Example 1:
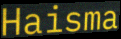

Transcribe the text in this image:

Haisma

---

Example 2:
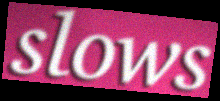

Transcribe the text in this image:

slows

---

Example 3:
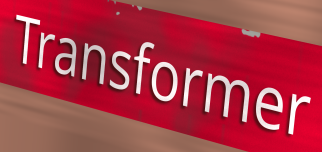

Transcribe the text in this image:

Transformer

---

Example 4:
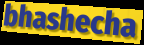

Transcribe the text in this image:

bhashecha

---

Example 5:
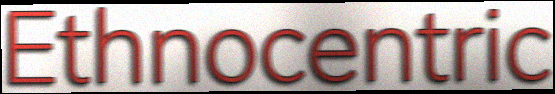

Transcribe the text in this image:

Ethnocentric